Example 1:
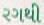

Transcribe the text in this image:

રગથી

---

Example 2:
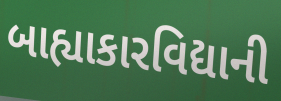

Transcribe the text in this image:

બાહ્યાકારવિદ્યાની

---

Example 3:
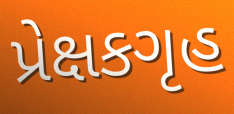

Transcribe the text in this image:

પ્રેક્ષકગૃહ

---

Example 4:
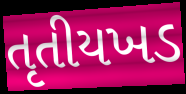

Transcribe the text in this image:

તૃતીયખડ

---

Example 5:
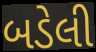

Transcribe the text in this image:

બડેલી